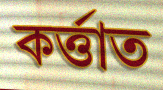
কৰ্ত্তাত